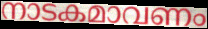
നാടകമാവണം